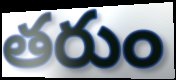
తరుం